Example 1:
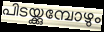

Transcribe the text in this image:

പിടയ്ക്കുമ്പോഴും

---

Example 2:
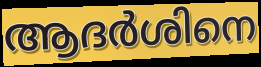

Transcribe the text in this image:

ആദർശിനെ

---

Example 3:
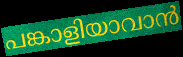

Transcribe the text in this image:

പങ്കാളിയാവാൻ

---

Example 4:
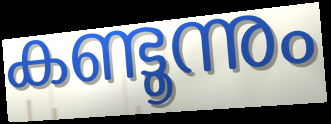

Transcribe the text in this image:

കണ്ടൂന്നും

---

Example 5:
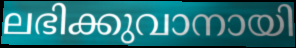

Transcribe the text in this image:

ലഭിക്കുവാനായി